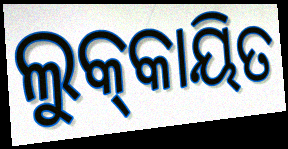
ଲୁକ୍‌କାୟିତ